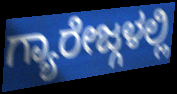
ಗ್ಯಾರೇಜ್ಗಳಲ್ಲಿ